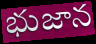
భుజాన